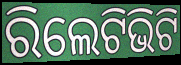
ରିଲେଟିଭିଟି